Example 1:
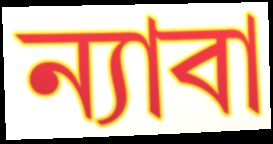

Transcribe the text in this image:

ন্যাবা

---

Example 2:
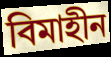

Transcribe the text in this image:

বিমাহীন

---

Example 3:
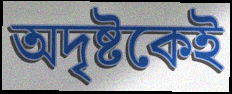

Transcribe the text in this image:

অদৃষ্টকেই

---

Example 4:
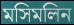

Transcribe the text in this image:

মসিমলিন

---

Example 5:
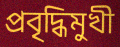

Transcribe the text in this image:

প্রবৃদ্ধিমুখী